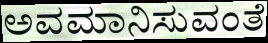
ಅವಮಾನಿಸುವಂತೆ